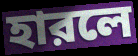
হারলে